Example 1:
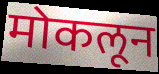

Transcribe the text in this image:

मोकलून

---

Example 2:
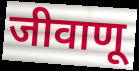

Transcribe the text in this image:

जीवाणू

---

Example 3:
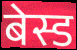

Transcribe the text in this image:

बेस्ड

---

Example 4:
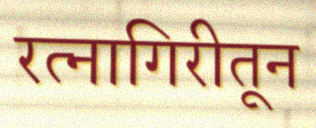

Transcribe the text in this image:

रत्नागिरीतून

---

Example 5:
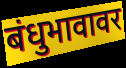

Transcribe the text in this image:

बंधुभावावर